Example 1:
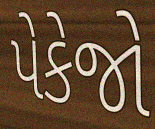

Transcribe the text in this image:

પેકેજો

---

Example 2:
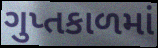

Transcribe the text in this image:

ગુપ્તકાળમાં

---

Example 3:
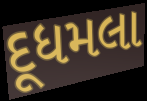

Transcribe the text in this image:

દૂધમલા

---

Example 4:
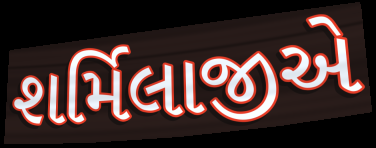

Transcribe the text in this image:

શર્મિલાજીએ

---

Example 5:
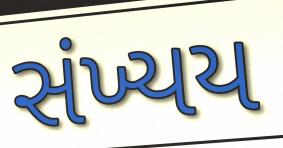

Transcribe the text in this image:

સંખ્યય